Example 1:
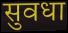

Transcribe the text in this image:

सुवधा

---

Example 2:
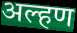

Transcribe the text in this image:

अल्हण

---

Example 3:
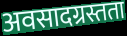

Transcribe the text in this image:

अवसादग्रस्तता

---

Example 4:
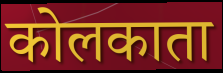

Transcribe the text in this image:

कोलकाता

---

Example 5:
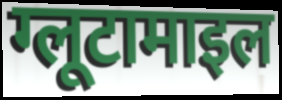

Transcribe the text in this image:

ग्लूटामाइल